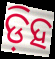
ଡ଼ିହ